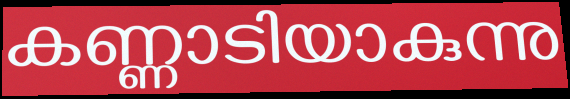
കണ്ണാടിയാകുന്നു